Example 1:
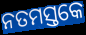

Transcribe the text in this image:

ନତମସ୍ତକେ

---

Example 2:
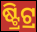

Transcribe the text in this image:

ଷ୍ଟ୍ରିଟ୍ର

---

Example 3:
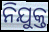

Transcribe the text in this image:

ନିଯୁକ୍ତ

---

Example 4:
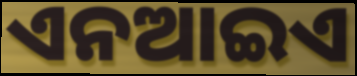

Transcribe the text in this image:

ଏନଆଇଏ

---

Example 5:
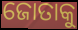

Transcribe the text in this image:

ଜୋତାକୁ